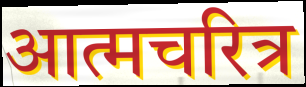
आत्मचरित्र